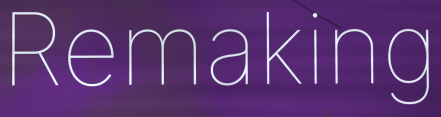
Remaking